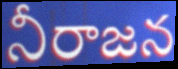
నీరాజన